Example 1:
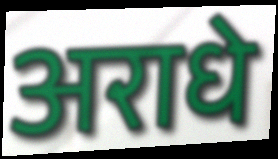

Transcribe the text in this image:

अराधे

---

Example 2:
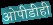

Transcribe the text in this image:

ओपीडीही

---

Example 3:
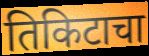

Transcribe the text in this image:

तिकिटाचा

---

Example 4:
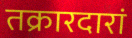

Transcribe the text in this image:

तक्रारदारां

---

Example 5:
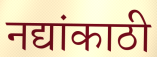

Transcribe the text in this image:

नद्यांकाठी